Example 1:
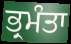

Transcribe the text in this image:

ਭ੍ਰਮੰਤਾ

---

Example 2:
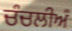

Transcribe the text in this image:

ਚੰਚਲੀਅੰ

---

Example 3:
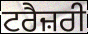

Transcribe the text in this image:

ਟਰੈਜ਼ਰੀ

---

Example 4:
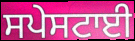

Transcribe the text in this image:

ਸਪੇਸਟਾਈ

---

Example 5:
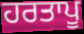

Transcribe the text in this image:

ਹਰਤਾਪੂ